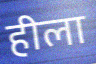
हीला